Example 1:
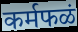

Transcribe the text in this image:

कर्मफळं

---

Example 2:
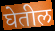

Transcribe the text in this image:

घेतील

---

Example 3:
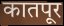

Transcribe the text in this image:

कातपूर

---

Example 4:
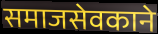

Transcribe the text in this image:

समाजसेवकाने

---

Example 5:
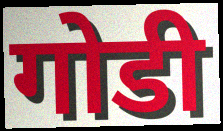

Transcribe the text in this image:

गोडी